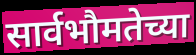
सार्वभौमतेच्या